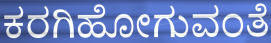
ಕರಗಿಹೋಗುವಂತೆ